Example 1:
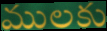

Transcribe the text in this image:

ములకు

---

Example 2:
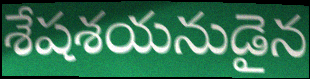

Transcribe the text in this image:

శేషశయనుడైన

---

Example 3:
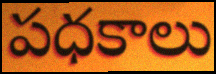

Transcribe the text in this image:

పధకాలు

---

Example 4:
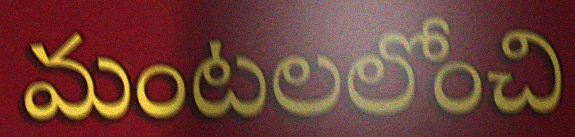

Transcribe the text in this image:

మంటలలోంచి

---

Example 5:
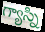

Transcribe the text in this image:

గ్యాస్ని